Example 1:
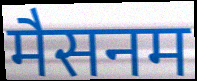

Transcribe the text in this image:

मैसनम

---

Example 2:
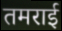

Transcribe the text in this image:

तमराई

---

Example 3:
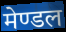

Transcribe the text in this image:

मेण्डल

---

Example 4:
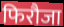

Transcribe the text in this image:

फिरौजा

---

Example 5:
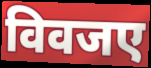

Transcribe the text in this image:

विवजए